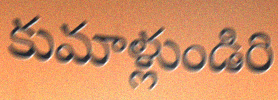
కుమాళ్లుండిరి